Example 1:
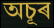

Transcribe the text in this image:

অচূৰ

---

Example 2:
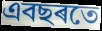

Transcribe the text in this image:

এবছৰতে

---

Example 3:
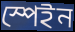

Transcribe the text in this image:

স্পেইন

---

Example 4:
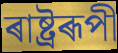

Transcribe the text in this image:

ৰাষ্ট্ৰৰূপী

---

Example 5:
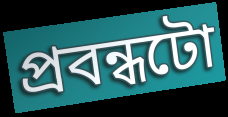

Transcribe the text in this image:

প্ৰবন্ধটো